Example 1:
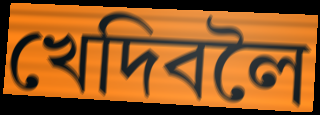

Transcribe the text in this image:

খেদিবলৈ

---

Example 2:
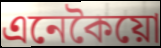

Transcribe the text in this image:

এনেকৈয়ো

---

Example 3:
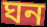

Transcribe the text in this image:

ঘন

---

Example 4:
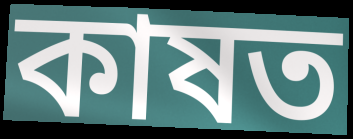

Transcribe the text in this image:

কাষত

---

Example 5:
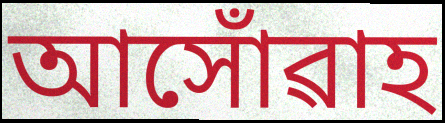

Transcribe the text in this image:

আসোঁৱাহ